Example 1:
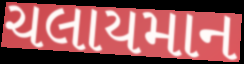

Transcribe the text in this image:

ચલાયમાન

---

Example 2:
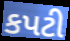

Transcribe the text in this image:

કપટી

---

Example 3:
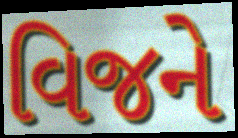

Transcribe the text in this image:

વિજને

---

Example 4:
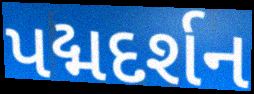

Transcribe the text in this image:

પદ્મદર્શન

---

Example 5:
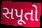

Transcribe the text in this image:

સપૂતો